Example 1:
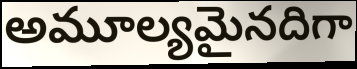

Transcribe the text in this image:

అమూల్యమైనదిగా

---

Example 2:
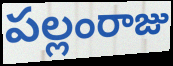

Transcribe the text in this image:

పల్లంరాజు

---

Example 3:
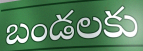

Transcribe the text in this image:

బండలకు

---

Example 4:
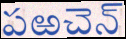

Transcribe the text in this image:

పఱచెన్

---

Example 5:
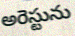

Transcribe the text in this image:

అరెస్టును